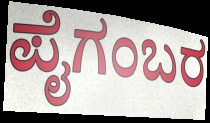
ಪೈಗಂಬರ